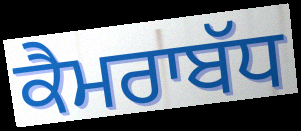
ਕੈਮਰਾਬੱਧ